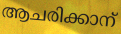
ആചരിക്കാന്